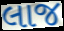
લાજ